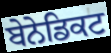
ਬੇਨੇਡਿਕਟ